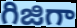
గిజిగా